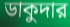
ডাকুদার